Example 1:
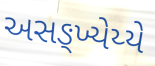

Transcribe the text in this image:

અસઙ્ખ્યેય્યે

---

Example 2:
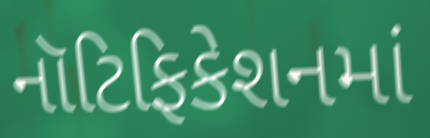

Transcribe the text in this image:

નૉટિફિકેશનમાં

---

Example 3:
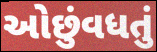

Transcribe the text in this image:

ઓછુંવધતું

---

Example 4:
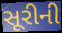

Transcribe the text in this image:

સૂરીની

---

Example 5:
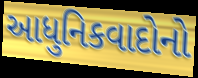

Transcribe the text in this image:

આધુનિકવાદોનો